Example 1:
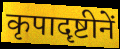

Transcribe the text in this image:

कृपादृष्टीनें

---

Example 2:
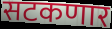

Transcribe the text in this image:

सटकणार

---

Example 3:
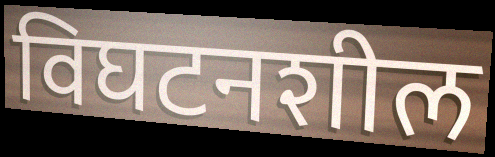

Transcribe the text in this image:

विघटनशील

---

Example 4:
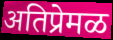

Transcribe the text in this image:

अतिप्रेमळ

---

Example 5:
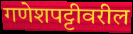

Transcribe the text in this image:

गणेशपट्टीवरील